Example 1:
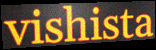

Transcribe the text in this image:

vishista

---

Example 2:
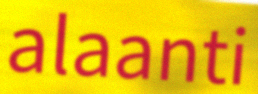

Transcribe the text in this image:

alaanti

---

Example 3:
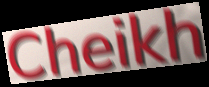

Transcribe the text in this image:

Cheikh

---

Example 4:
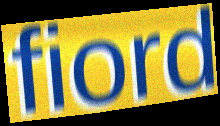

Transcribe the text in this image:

fiord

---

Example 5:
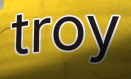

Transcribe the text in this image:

troy